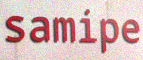
samipe